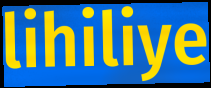
lihiliye